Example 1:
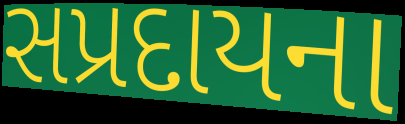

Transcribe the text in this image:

સપ્રદાયના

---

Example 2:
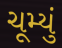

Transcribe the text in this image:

ચૂમ્યું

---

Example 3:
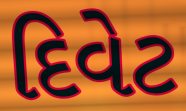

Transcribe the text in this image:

દિવેટ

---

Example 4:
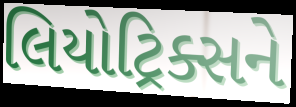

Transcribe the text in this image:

લિયોટ્રિક્સને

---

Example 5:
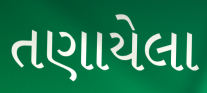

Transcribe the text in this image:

તણાયેલા